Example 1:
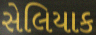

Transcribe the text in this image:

સેલિયાક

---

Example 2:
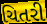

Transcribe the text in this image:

ચિતરી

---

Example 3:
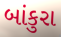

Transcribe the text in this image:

બાંકુરા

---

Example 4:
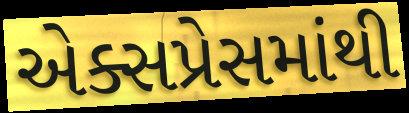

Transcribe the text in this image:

એક્સપ્રેસમાંથી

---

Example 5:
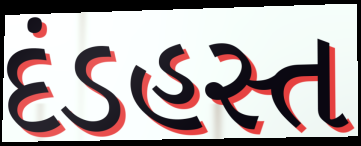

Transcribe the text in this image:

દંડહસ્ત